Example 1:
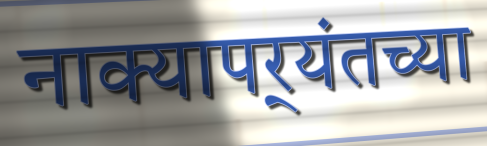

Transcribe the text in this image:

नाक्यापर्यंतच्या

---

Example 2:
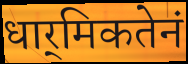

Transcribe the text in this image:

धार्मिकतेनं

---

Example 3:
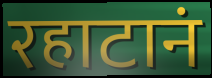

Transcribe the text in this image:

रहाटानं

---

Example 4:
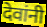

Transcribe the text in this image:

देवांनी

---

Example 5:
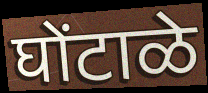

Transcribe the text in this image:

घोंटाळे